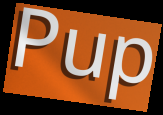
Pup